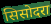
सिसोदरा